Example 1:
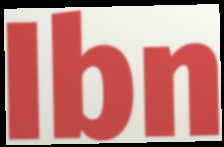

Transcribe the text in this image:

Ibn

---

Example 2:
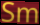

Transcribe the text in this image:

Sm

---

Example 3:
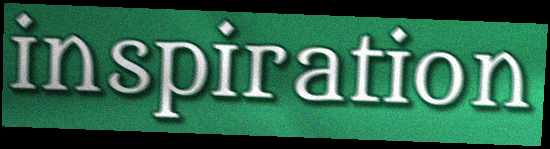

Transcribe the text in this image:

inspiration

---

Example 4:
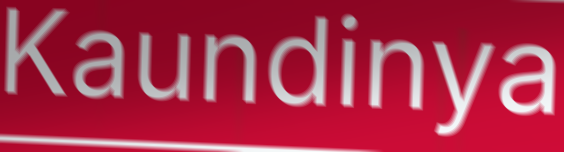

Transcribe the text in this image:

Kaundinya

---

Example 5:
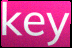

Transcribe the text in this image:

key